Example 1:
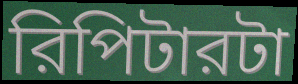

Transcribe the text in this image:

রিপিটারটা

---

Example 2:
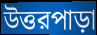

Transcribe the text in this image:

উত্তরপাড়া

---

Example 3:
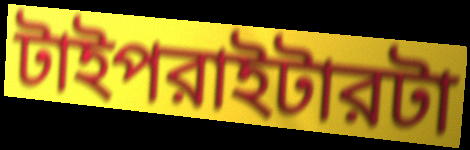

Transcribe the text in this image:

টাইপরাইটারটা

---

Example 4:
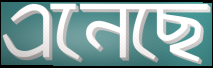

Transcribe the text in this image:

এনেছে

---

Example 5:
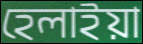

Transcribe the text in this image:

হেলাইয়া